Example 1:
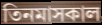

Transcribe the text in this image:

তিনমাসকাল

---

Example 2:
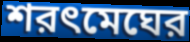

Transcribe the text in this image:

শরৎমেঘের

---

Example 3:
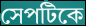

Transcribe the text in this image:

সেপটিকে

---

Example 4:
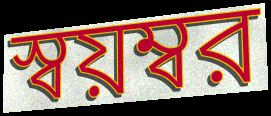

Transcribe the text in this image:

স্বয়ম্বর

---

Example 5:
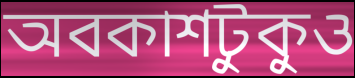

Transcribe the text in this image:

অবকাশটুকুও